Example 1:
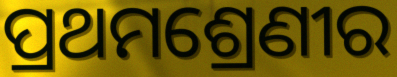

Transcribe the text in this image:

ପ୍ରଥମଶ୍ରେଣୀର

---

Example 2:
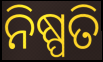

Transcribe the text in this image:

ନିଷ୍ପତି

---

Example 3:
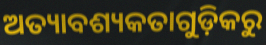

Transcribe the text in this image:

ଅତ୍ୟାବଶ୍ୟକତାଗୁଡ଼ିକରୁ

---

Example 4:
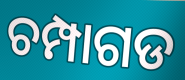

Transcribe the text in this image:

ଚମ୍ପାଗଡ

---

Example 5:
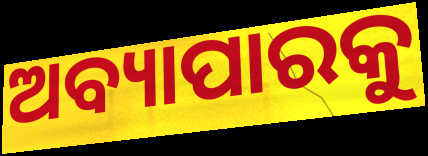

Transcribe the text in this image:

ଅବ୍ୟାପାରକୁ